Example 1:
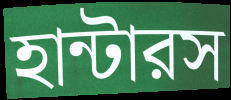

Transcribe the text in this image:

হান্টারস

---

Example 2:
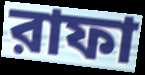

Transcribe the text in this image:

রাফা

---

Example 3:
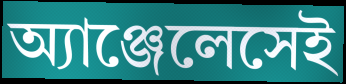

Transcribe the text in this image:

অ্যাঞ্জেলেসেই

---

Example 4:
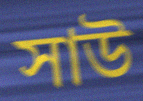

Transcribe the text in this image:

সাউ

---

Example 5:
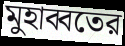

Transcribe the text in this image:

মুহাব্বতের